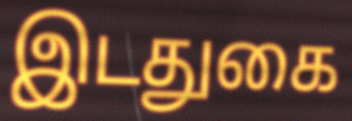
இடதுகை